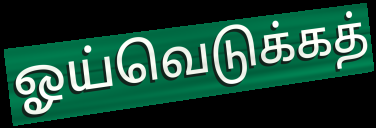
ஓய்வெடுக்கத்